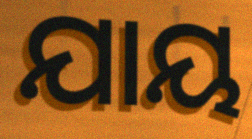
ଯାୟ